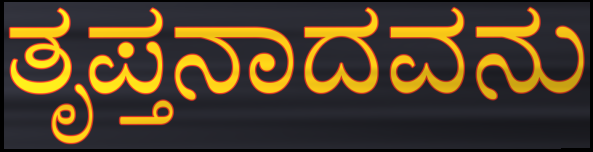
ತೃಪ್ತನಾದವನು